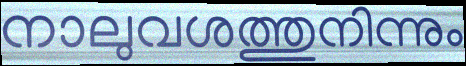
നാലുവശത്തുനിന്നും